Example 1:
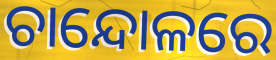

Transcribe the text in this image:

ଚାନ୍ଦୋଳରେ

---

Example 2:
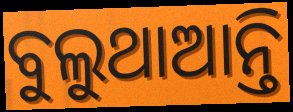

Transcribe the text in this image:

ବୁଲୁଥାଆନ୍ତି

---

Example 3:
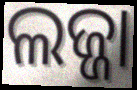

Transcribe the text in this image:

ଲଜ୍ଜା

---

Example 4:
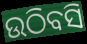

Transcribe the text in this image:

ଉଠିବସି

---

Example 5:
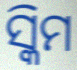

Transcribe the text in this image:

ସ୍କିମ